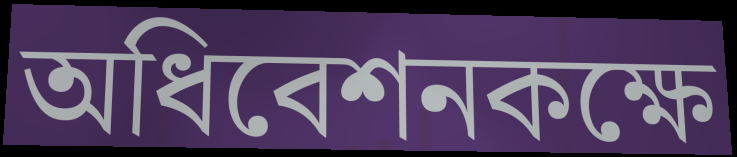
অধিবেশনকক্ষে